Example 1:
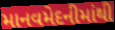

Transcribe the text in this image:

માનવમેદનીમાંથી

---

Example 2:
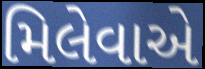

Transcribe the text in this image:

મિલેવાએ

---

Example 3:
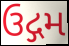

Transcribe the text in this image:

ઉદ્ગમ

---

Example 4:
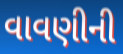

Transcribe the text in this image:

વાવણીની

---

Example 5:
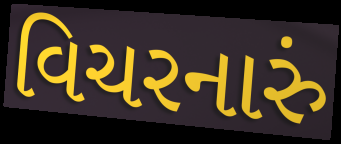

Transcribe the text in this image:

વિચરનારું